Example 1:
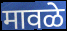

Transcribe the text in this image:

मावळे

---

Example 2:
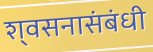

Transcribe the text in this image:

श्वसनासंबंधी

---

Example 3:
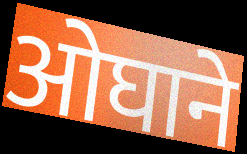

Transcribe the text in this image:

ओघाने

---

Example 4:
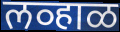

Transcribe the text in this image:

लव्हाळ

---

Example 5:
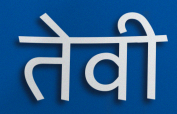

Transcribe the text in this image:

तेवी